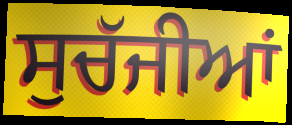
ਸੁਚੱਜੀਆਂ